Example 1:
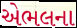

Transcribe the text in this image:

એભલના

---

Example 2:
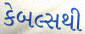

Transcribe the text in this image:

કેબલ્સથી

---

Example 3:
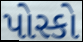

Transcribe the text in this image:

પોસ્કો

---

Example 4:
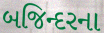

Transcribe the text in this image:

બજિન્દરના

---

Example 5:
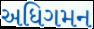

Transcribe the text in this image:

અધિગમન